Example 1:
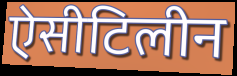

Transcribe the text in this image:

ऐसीटिलीन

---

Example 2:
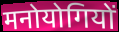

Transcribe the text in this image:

मनोयोगियों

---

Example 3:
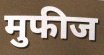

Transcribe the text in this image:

मुफीज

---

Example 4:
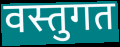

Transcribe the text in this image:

वस्तुगत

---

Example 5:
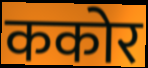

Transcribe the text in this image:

ककोर